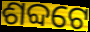
ଶବ୍ଦଟେ